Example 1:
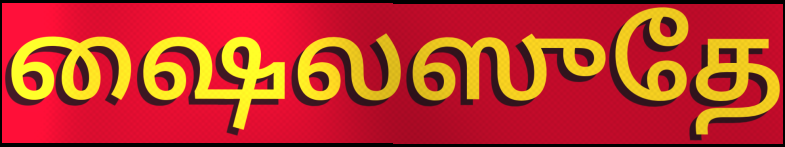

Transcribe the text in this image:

ஷைலஸுதே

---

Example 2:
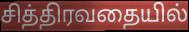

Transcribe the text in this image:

சித்திரவதையில்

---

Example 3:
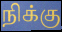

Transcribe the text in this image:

நிக்கு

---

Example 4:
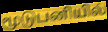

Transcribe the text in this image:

மூடுபனியில்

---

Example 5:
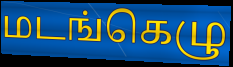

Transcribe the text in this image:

மடங்கெழு